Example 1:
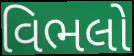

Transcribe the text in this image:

વિભલો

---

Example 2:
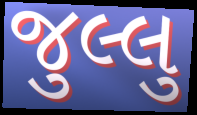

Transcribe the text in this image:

જુલ્લુ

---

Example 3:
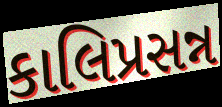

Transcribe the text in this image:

કાલિપ્રસન્ન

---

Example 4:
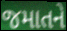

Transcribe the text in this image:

જમાતને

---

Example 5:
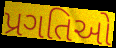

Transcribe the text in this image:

પ્રગતિઓ